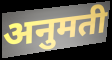
अनुमती